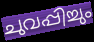
ചുവപ്പിച്ചും